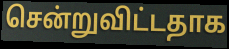
சென்றுவிட்டதாக